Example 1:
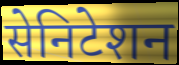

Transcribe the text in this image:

सेनिटेशन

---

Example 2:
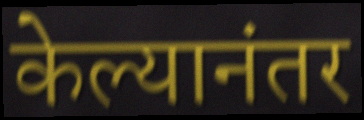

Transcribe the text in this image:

केल्यानंतर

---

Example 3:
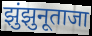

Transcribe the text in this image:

झुंझुनूताजा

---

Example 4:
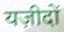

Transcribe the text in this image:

यज़ीदों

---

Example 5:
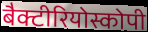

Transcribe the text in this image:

बैक्टीरियोस्कोपी